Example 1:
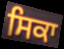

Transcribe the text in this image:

ਸਿਕਾ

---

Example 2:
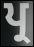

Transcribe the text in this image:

ਪ੍ਰ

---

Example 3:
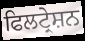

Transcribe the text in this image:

ਫਿਲਟ੍ਰੇਸ਼ਨ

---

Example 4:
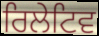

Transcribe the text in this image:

ਰਿਲੇਟਿਵ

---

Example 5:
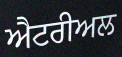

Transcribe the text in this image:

ਐਟਰੀਅਲ